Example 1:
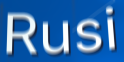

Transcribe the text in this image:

Rusi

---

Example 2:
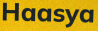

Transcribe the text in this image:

Haasya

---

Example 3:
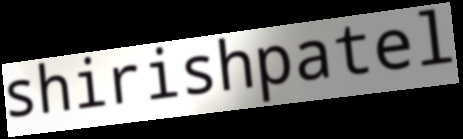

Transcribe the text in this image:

shirishpatel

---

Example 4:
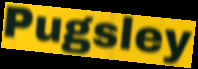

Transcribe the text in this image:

Pugsley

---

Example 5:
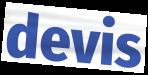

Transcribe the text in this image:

devis